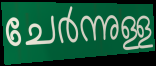
ചേർന്നുള്ള